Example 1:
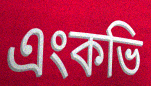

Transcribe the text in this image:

এংকভি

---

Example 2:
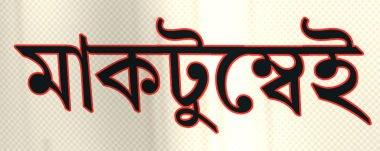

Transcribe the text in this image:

মাকটুম্বেই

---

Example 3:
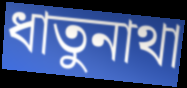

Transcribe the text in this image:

ধাতুনাথা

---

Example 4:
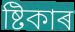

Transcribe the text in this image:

ষ্টিকাৰ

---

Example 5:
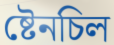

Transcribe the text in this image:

ষ্টেনচিল